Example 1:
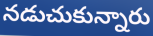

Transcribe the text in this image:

నడుచుకున్నారు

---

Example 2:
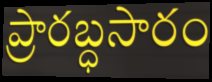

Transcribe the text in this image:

ప్రారబ్ధసారం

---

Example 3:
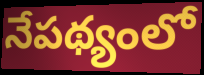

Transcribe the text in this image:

నేపథ్యంలో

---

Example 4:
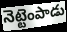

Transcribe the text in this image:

నెట్టెంపాడు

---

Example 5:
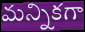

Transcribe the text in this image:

మన్నికగా